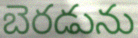
బెరడును